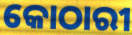
କୋଠାରୀ